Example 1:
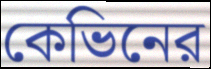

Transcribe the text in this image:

কেভিনের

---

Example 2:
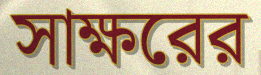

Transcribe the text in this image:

সাক্ষরের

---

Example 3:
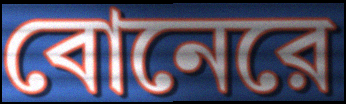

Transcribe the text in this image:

বোনেরে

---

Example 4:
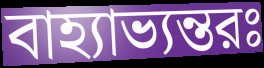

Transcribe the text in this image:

বাহ্যাভ্যন্তরঃ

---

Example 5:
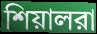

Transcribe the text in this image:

শিয়ালরা